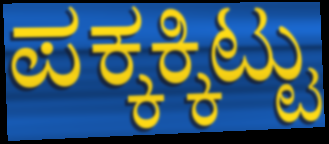
ಪಕ್ಕಕ್ಕಿಟ್ಟು